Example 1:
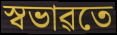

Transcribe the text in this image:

স্বভাৱতে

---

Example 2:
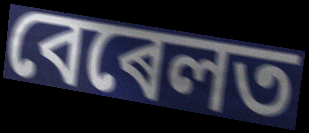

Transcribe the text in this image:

বেৰেলত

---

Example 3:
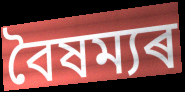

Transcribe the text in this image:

বৈষম্যৰ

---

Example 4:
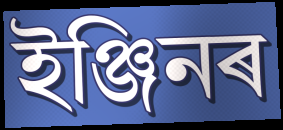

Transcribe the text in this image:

ইঞ্জিনৰ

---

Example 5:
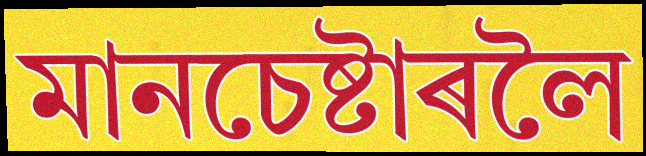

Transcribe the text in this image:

মানচেষ্টাৰলৈ